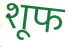
शूफ